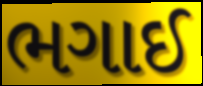
ભગાઈ